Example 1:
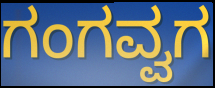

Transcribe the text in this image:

ಗಂಗವ್ವಗ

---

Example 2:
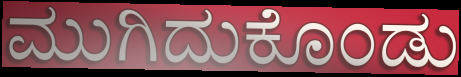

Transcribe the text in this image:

ಮುಗಿದುಕೊಂಡು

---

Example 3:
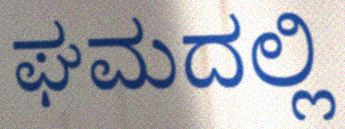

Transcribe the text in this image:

ಘಮದಲ್ಲಿ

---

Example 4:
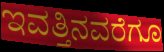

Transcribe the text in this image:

ಇವತ್ತಿನವರೆಗೂ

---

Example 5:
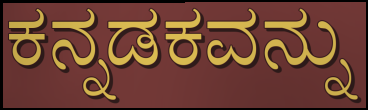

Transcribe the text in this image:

ಕನ್ನಡಕವನ್ನು